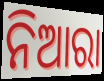
ନିଆରା